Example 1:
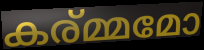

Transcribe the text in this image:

കര്മ്മമോ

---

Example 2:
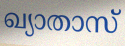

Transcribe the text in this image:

ഖ്യാതാസ്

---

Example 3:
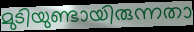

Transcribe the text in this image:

മുടിയുണ്ടായിരുന്നതാ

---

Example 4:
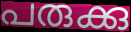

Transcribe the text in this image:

പരുക്കു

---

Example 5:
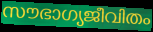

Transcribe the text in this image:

സൗഭാഗ്യജീവിതം